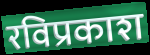
रविप्रकाश